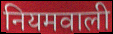
नियमवाली